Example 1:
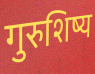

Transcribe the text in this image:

गुरुशिष्य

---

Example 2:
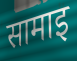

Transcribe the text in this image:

सामाइ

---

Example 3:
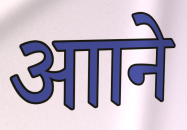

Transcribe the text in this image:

आाने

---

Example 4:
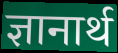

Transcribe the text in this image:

ज्ञानार्थ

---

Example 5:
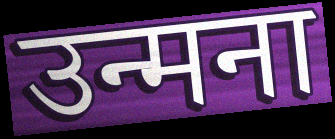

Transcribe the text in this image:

उन्मना